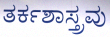
ತರ್ಕಶಾಸ್ತ್ರವು